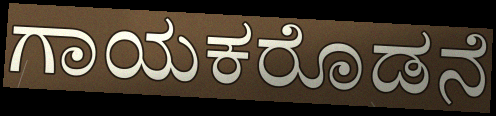
ಗಾಯಕರೊಡನೆ